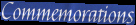
Commemorations